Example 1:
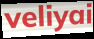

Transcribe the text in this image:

veliyai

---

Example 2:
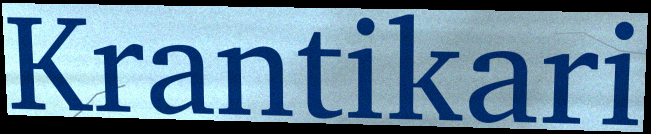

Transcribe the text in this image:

Krantikari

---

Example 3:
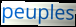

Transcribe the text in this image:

peuples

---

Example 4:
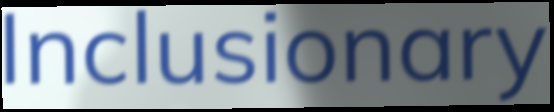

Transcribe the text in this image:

Inclusionary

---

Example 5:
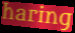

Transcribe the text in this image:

haring